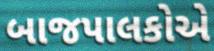
બાજપાલકોએ